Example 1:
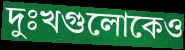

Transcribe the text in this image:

দুঃখগুলোকেও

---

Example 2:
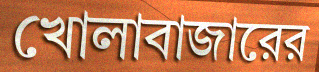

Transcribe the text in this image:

খোলাবাজারের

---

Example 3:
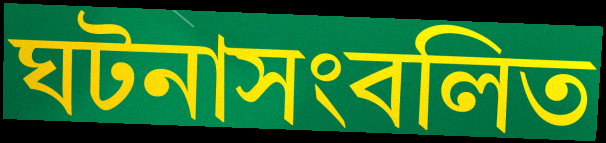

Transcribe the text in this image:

ঘটনাসংবলিত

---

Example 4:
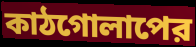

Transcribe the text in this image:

কাঠগোলাপের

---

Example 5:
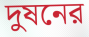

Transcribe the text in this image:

দুষনের